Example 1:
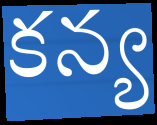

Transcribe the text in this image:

కన్య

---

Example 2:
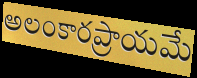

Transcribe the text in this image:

అలంకారప్రాయమే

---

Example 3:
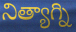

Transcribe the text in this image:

నిత్యాగ్ని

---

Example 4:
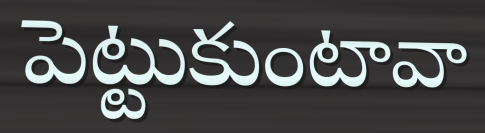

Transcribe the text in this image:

పెట్టుకుంటావా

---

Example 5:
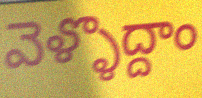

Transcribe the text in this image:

వెళ్ళొద్దాం